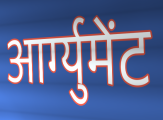
आर्ग्युमेंट